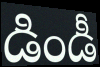
డిండీ